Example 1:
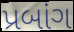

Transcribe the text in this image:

પ્રબાંગ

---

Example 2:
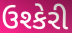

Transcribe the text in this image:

ઉશ્કેરી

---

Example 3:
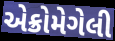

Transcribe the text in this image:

એક્રોમેગેલી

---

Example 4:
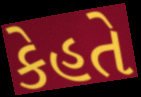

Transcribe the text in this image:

કેહતે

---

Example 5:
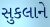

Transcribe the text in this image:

સુકલાને